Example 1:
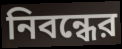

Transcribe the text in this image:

নিবন্ধের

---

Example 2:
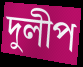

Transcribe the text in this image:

দুলীপ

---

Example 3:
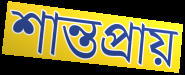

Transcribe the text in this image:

শান্তপ্রায়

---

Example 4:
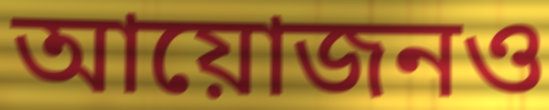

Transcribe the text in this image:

আয়োজনও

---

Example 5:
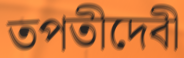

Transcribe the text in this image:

তপতীদেবী